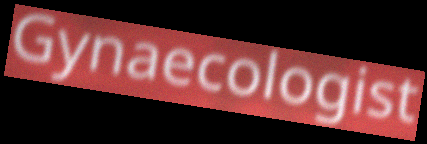
Gynaecologist